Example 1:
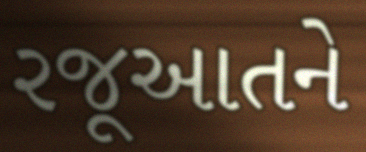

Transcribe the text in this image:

રજૂઆતને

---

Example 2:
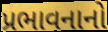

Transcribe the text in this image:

પ્રભાવનાનો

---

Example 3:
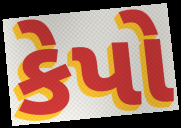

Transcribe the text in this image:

કેપો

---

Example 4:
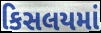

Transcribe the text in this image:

કિસલયમાં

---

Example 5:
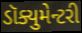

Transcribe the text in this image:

ડૉક્યુમેન્ટરી